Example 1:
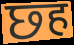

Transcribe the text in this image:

छ्ह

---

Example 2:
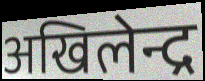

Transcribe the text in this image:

अखिलेन्द्र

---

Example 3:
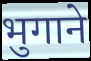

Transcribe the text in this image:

भुगाने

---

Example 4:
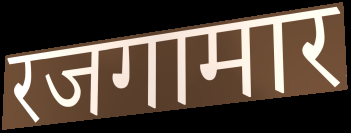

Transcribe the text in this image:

रजगामार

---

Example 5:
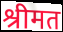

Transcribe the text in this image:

श्रीमत